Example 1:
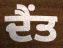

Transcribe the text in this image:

ਦੈਂਤ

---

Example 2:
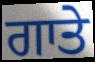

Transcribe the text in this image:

ਗਾਤੇ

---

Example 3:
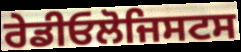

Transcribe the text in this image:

ਰੇਡੀਓਲੋਜਿਸਟਸ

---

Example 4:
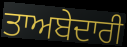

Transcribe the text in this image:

ਤਾਅਬੇਦਾਰੀ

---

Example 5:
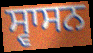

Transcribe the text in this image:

ਸ੍ਵਾਸਨ